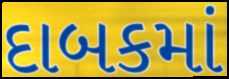
દાબકમાં